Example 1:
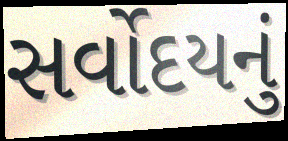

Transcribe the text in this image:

સર્વોદયનું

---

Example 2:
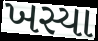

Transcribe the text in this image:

ખસ્યા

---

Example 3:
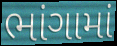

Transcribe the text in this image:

ભાંગામાં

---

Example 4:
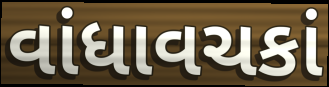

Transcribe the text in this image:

વાંધાવચકાં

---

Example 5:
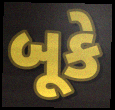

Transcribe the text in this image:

બૂકે